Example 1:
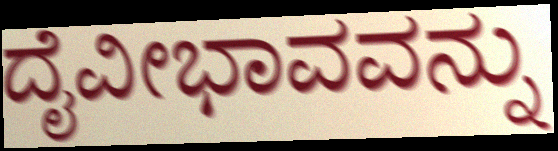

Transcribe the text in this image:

ದೈವೀಭಾವವನ್ನು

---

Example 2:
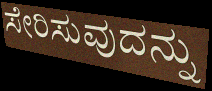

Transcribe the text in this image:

ಸೇರಿಸುವುದನ್ನು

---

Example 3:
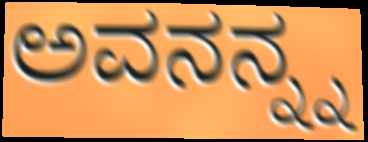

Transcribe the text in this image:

ಅವನನ್ನ್ನ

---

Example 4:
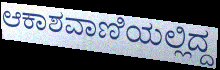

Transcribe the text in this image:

ಆಕಾಶವಾಣಿಯಲ್ಲಿದ್ದ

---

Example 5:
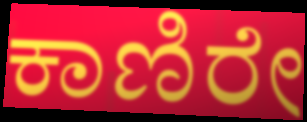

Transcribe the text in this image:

ಕಾಣಿರೇ